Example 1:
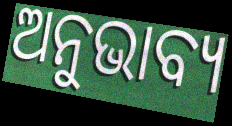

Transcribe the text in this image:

ଅନୁଭାବ୍ୟ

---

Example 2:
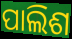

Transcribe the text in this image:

ପାଲିଶ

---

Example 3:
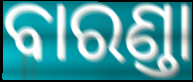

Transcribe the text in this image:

ବାରଣ୍ଡା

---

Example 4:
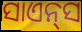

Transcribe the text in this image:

ସାଏନ୍‌ସ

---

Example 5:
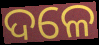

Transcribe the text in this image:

ଦଳେ